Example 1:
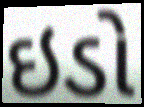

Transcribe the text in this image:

ઇડો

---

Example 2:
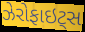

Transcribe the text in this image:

ઝેરોફાઇટ્સ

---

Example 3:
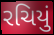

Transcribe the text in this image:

રચિયું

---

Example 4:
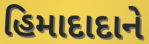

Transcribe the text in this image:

હિમાદાદાને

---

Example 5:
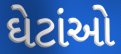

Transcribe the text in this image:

ઘેટાંઓ